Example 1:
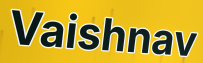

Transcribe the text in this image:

Vaishnav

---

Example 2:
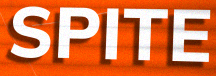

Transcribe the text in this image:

SPITE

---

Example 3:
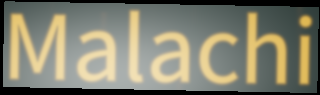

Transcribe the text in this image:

Malachi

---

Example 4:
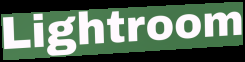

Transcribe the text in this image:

Lightroom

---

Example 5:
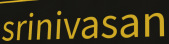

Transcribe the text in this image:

srinivasan